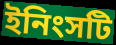
ইনিংসটি